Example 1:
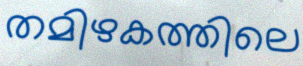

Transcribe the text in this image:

തമിഴകത്തിലെ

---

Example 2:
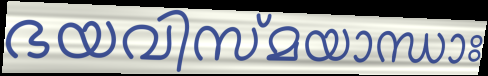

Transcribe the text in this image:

ഭയവിസ്മയാന്ധാഃ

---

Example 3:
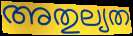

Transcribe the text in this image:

അതുല്യത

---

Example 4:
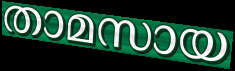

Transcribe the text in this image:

താമസായ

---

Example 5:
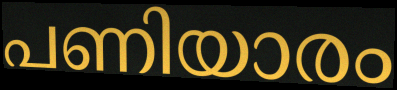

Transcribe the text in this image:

പണിയാരം